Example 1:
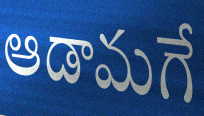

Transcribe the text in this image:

ఆడామగే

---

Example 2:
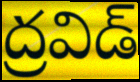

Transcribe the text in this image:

ద్రవిడ్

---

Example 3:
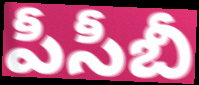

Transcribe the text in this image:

పీసీబీ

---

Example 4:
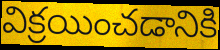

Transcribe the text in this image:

విక్రయించడానికి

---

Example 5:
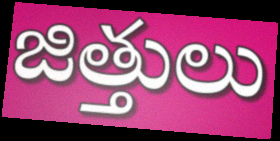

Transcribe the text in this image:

జిత్తులు